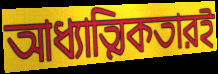
আধ্যাত্মিকতারই